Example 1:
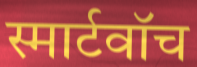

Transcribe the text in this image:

स्मार्टवॉच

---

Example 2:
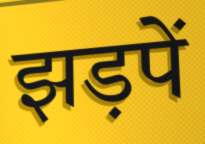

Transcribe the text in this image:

झड़पें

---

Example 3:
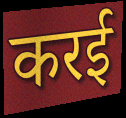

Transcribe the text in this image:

करई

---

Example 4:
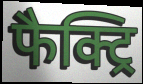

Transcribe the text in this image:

फैक्ट्रि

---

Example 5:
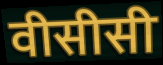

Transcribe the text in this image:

वीसीसी